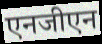
एनजीएन